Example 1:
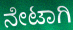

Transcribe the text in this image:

ನೇಟಾಗಿ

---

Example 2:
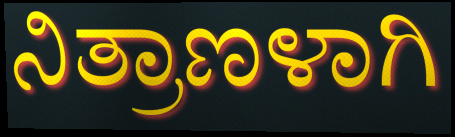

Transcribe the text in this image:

ನಿತ್ರಾಣಳಾಗಿ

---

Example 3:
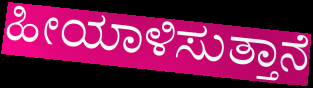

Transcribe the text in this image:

ಹೀಯಾಳಿಸುತ್ತಾನೆ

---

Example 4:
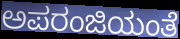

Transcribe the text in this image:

ಅಪರಂಜಿಯಂತೆ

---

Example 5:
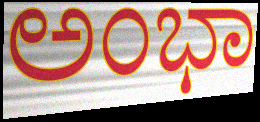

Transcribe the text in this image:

ಅಂಭಾ